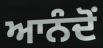
ਆਨੰਦੋਂ